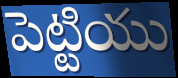
పెట్టియు